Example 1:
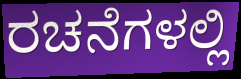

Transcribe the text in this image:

ರಚನೆಗಳಲ್ಲಿ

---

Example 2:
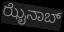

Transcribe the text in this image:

ಝೈನಾಬ್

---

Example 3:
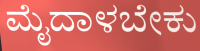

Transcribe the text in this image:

ಮೈದಾಳಬೇಕು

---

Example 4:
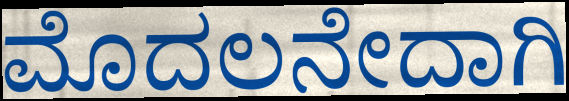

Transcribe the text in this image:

ಮೊದಲನೇದಾಗಿ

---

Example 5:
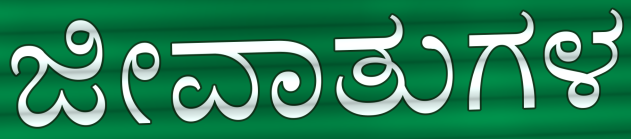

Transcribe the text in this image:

ಜೀವಾತುಗಳ